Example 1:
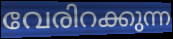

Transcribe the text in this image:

വേരിറക്കുന്ന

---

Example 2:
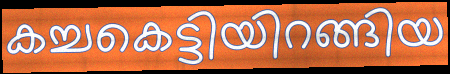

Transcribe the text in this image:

കച്ചകെട്ടിയിറങ്ങിയ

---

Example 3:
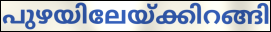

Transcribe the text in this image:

പുഴയിലേയ്ക്കിറങ്ങി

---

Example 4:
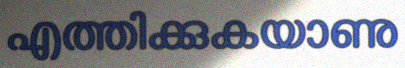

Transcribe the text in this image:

എത്തിക്കുകയാണു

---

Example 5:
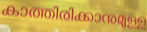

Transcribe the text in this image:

കാത്തിരിക്കാനുമുള്ള